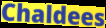
Chaldees